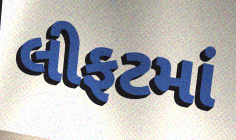
લીફટમાં